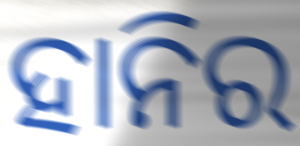
ହାନିର